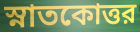
স্নাতকোত্তর